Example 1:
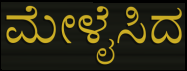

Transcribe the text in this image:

ಮೇಳೈಸಿದ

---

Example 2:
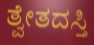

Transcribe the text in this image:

ತ್ವೇತದಸ್ತಿ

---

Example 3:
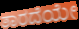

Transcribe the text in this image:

ತಾರದೆಯೇ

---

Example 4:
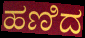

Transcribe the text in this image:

ಹಣಿದ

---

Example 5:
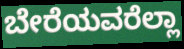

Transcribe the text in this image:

ಬೇರೆಯವರೆಲ್ಲಾ